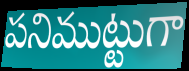
పనిముట్టుగా